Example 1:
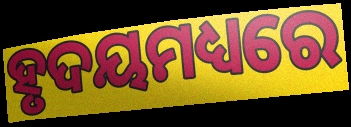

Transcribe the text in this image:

ହୃଦୟମଧ୍ୟରେ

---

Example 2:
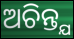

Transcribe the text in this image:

ଅଚିନ୍ତ୍ଯ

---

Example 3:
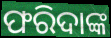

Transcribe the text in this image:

ଫରିଦାଙ୍କ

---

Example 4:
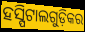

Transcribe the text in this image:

ହସ୍ପିଟାଲଗୁଡ଼ିକର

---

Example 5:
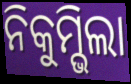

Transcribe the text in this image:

ନିକୁମ୍ଭିଲା